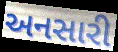
અનસારી